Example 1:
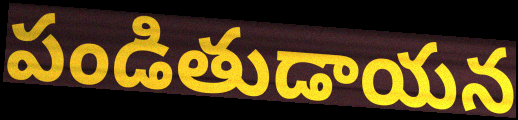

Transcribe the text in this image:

పండితుడాయన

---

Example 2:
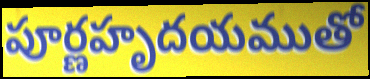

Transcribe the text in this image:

పూర్ణహృదయముతో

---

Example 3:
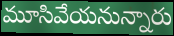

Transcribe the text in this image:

మూసివేయనున్నారు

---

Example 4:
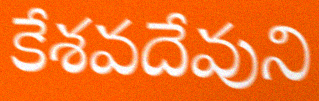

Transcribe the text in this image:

కేశవదేవుని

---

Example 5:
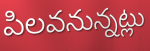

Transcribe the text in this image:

పిలవనున్నట్లు